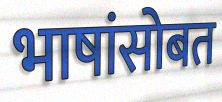
भाषांसोबत